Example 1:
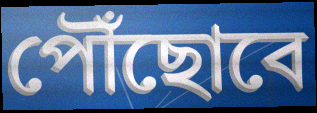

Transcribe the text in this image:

পৌঁছোবে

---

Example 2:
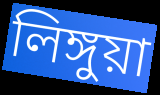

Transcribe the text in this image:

লিঙ্গুয়া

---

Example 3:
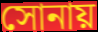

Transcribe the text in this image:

সোনায়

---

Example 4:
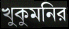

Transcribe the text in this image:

খুকুমনির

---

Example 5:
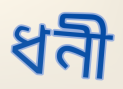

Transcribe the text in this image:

ধনী